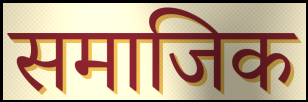
समाजिक